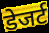
डेजर्ट